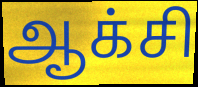
ஆக்சி